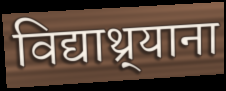
विद्याथ्र्याना